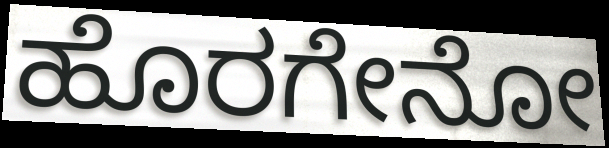
ಹೊರಗೇನೋ